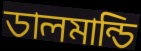
ডালমান্ডি